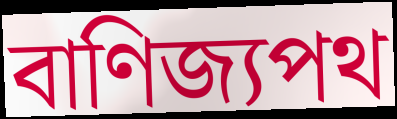
বাণিজ্যপথ